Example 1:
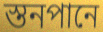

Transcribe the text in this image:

স্তনপানে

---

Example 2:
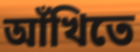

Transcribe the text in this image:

আঁখিতে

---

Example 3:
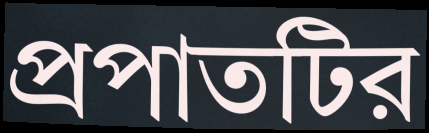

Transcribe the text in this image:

প্রপাতটির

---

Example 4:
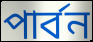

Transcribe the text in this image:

পার্বন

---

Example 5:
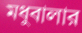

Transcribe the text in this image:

মধুবালার